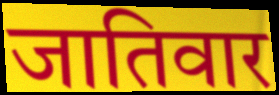
जातिवार